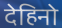
देहिनो